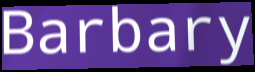
Barbary